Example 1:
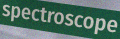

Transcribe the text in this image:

spectroscope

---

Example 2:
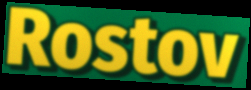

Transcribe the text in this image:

Rostov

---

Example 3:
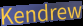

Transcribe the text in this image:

Kendrew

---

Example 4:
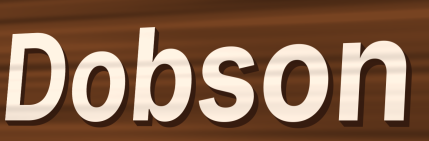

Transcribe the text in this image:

Dobson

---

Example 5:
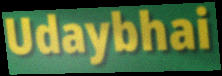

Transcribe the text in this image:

Udaybhai